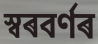
স্বৰবৰ্ণৰ